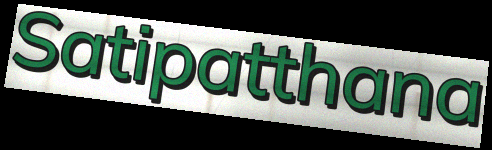
Satipatthana